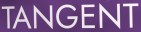
TANGENT